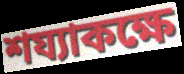
শয্যাকক্ষে